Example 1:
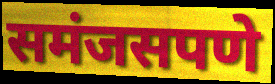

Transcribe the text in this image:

समंजसपणे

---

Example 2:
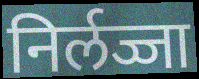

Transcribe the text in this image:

निर्लज्जा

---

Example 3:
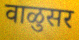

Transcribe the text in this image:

वाळुसर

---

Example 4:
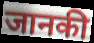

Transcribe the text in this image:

जानकी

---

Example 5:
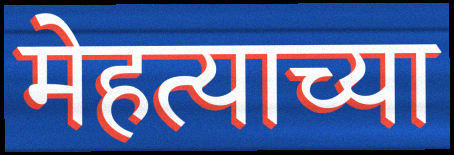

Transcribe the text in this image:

मेहत्याच्या